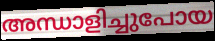
അന്ധാളിച്ചുപോയ